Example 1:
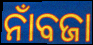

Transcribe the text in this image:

ନାଁବଜା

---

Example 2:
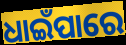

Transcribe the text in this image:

ଧାଇଁପାରେ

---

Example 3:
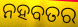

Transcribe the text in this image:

ନହବତର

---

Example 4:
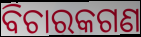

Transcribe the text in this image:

ବିଚାରକଗଣ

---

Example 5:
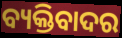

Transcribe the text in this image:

ବ୍ୟକ୍ତିବାଦର